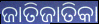
ଜାତିଜାତିକା